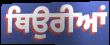
ਥਿਉਰੀਆਂ